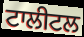
ਟਾਲੀਟਲ